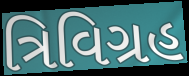
ત્રિવિગ્રહ